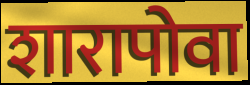
शारापोवा